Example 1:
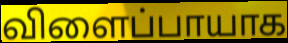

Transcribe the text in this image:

விளைப்பாயாக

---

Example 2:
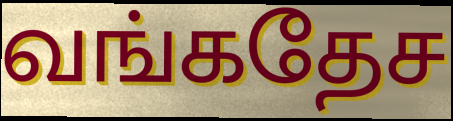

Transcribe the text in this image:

வங்கதேச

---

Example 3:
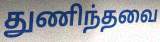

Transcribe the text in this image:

துணிந்தவை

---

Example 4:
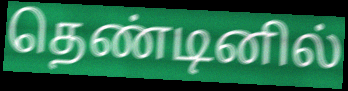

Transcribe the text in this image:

தெண்டினில்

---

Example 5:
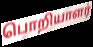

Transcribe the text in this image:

பொறியாளர்